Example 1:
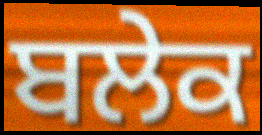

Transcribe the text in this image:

ਬਲੇਕ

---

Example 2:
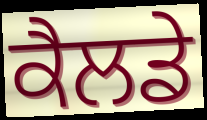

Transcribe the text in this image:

ਕੈਲਡੇ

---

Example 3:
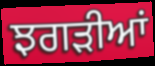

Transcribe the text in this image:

ਝਗੜੀਆਂ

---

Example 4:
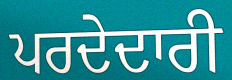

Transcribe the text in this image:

ਪਰਦੇਦਾਰੀ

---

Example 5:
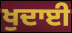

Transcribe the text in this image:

ਖੁਦਾਈ